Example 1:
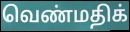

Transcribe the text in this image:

வெண்மதிக்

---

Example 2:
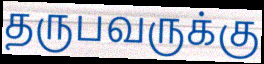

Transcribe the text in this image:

தருபவருக்கு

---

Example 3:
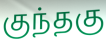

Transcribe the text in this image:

குந்தகு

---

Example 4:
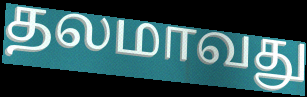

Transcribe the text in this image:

தலமாவது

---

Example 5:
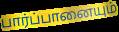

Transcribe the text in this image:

பார்ப்பானையும்